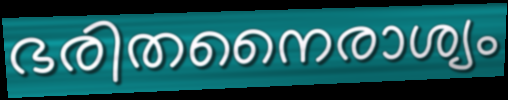
ഭരിതനൈരാശ്യം